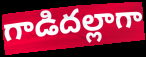
గాడిదల్లాగా